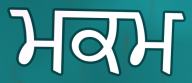
ਮਕਮ